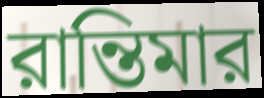
রান্তিমার